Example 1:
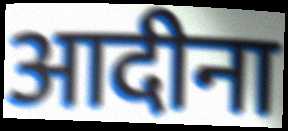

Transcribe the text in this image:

आदीना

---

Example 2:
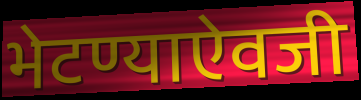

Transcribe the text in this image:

भेटण्याऐवजी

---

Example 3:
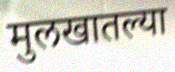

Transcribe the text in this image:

मुलखातल्या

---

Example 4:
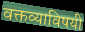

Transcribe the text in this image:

वक्तव्याविषयी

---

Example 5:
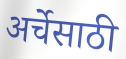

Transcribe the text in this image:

अर्चेसाठी